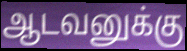
ஆடவனுக்கு